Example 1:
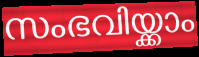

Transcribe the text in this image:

സംഭവിയ്ക്കാം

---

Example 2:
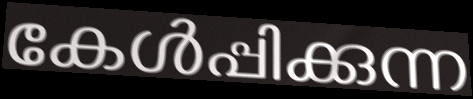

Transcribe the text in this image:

കേൾപ്പിക്കുന്ന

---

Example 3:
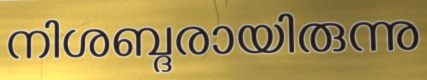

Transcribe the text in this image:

നിശബ്ദരായിരുന്നു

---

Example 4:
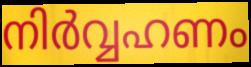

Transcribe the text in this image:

നിർവ്വഹണം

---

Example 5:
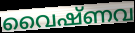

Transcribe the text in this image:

വൈഷ്ണവ